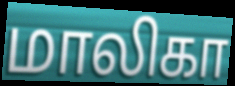
மாலிகா